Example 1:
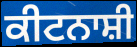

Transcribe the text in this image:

ਕੀਟਨਾਸ਼ੀ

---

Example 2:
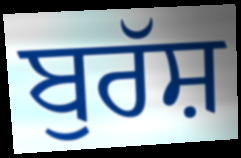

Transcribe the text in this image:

ਬੁਰੱਸ਼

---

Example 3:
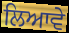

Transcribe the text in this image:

ਲਿਆਵੇ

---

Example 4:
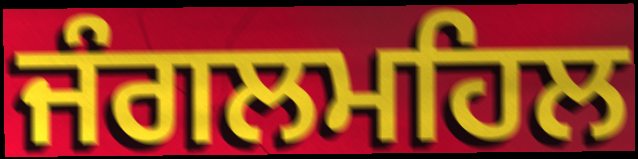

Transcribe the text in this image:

ਜੰਗਲਮਹਿਲ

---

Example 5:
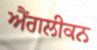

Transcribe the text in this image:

ਐਂਗਲੀਕਨ